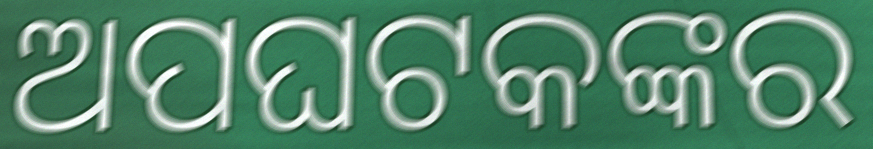
ଅପଘଟକଙ୍କର